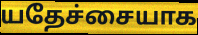
யதேச்சையாக